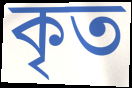
কৃত